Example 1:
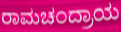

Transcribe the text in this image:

ರಾಮಚಂದ್ರಾಯ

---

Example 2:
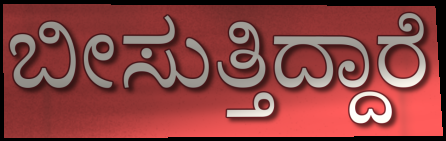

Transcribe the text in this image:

ಬೀಸುತ್ತಿದ್ದಾರೆ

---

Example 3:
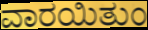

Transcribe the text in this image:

ವಾರಯಿತುಂ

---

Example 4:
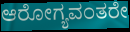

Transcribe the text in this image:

ಆರೋಗ್ಯವಂತರೇ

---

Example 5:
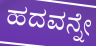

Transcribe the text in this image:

ಹದವನ್ನೇ